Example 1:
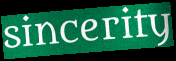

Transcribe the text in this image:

sincerity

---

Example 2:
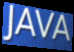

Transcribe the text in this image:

JAVA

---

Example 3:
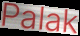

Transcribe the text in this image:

Palak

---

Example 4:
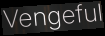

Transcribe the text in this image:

Vengeful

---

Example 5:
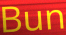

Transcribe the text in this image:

Bun